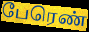
பேரெண்